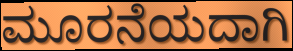
ಮೂರನೆಯದಾಗಿ